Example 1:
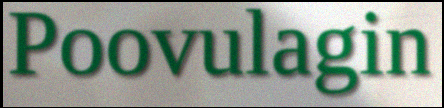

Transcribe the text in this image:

Poovulagin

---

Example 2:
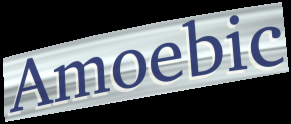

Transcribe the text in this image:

Amoebic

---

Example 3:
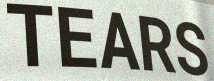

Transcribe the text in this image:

TEARS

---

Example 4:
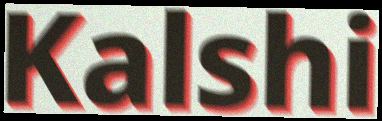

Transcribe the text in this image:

Kalshi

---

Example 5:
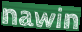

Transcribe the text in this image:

nawin